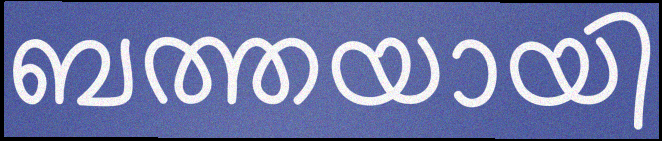
ബത്തയായി